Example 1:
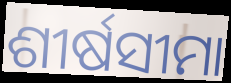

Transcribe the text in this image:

ଶୀର୍ଷସୀମା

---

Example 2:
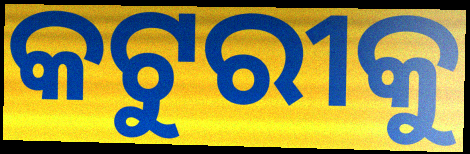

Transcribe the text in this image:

କଟୁରୀକୁ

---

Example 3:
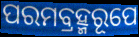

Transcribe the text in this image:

ପରମବ୍ରହ୍ମରୂପେ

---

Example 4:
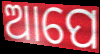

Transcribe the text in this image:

ଆପେ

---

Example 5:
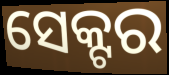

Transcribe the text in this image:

ସେକ୍ଟର